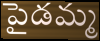
పైడమ్మ